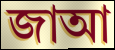
জাআ